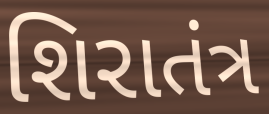
શિરાતંત્ર